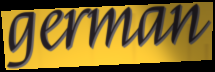
german